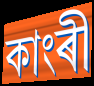
কাংৰী